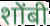
शोंबी